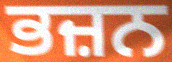
ਭਜ਼ਨ